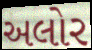
અલોર